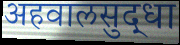
अहवालसुद्धा